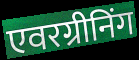
एवरग्रीनिंग